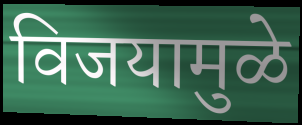
विजयामुळे